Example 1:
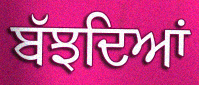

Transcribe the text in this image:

ਬੱਝਦਿਆਂ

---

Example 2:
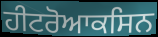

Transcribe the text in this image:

ਹੀਟਰੋਆਕਸਿਨ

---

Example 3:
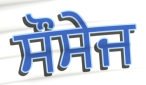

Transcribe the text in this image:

ਸੌਸੇਜ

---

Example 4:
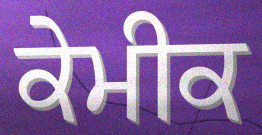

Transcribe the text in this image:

ਕੇਮੀਕ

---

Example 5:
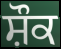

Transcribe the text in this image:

ਸ਼ੌਕ